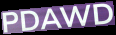
PDAWD